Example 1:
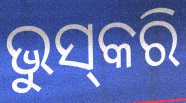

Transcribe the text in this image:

ଭୁସ୍‌କରି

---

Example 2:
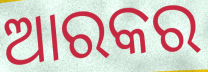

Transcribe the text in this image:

ଆରକର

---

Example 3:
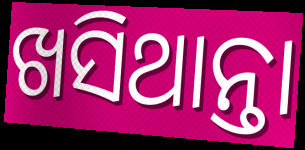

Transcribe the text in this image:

ଖସିଥାନ୍ତା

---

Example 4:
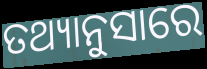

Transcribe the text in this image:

ତଥ୍ୟାନୁସାରେ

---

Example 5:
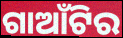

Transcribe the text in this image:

ଗାଆଁଟିର